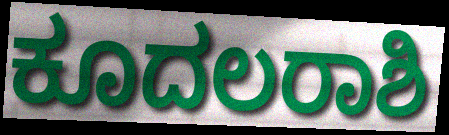
ಕೂದಲರಾಶಿ